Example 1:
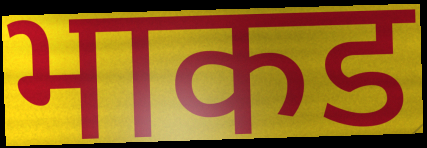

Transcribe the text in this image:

भाकड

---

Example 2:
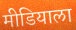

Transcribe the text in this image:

मीडियाला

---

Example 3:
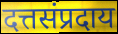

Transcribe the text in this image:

दत्तसंप्रदाय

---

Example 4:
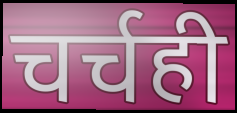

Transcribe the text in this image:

चर्चही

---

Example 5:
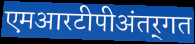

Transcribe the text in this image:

एमआरटीपीअंतर्गत